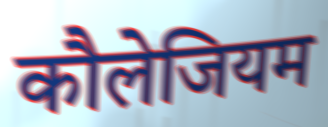
कौलेजियम